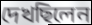
দেখছিলেন